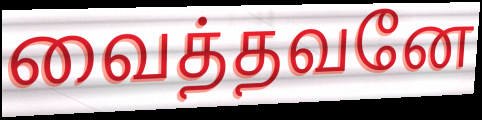
வைத்தவனே